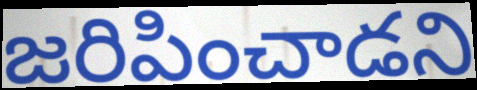
జరిపించాడని